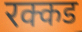
रक्कड